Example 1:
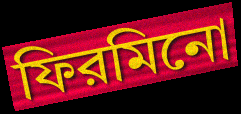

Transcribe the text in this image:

ফিরমিনো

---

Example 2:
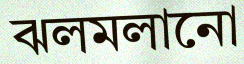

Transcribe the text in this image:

ঝলমলানো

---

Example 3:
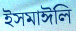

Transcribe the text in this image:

ইসমাঈলি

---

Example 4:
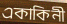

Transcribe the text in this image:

একাকিনী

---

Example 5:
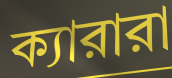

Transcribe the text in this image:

ক্যারারা